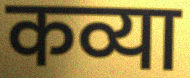
कव्या